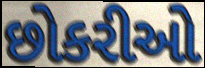
છોકરીઓ